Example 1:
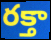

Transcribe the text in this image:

రక్తా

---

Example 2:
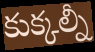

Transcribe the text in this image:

కుక్కల్నీ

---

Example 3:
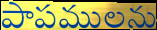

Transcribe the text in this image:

పాపములను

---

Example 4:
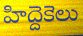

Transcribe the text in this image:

హిద్దెకెలు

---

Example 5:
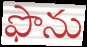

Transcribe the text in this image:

ఫొను